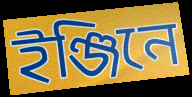
ইঞ্জিনে